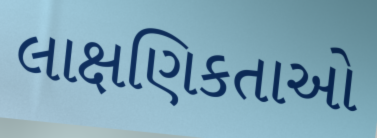
લાક્ષણિકતાઓ